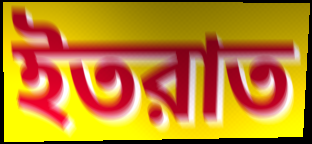
ইতরাত